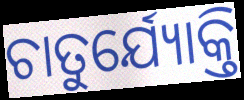
ଚାତୁର୍ଯ୍ୟୋକ୍ତି